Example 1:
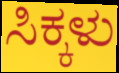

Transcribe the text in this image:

ಸಿಕ್ಕಳು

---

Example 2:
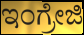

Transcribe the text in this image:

ಇಂಗ್ರೇಜಿ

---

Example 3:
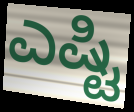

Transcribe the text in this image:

ಎಷ್ಟಿ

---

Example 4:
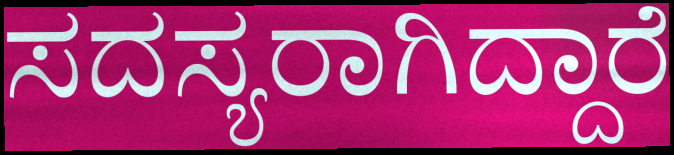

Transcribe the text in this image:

ಸದಸ್ಯರಾಗಿದ್ದಾರೆ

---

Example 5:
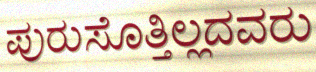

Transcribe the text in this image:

ಪುರುಸೊತ್ತಿಲ್ಲದವರು